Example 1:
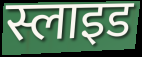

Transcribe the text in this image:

स्लाइड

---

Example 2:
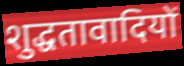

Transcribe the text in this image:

शुद्धतावादियों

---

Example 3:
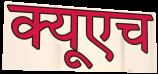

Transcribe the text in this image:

क्यूएच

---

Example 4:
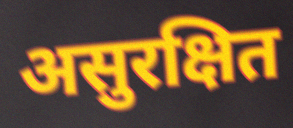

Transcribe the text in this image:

असुरक्षित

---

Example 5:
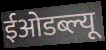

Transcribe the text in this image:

ईओडब्ल्यू